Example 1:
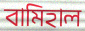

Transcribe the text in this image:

বামিহাল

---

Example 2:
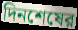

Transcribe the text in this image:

দিনশেষের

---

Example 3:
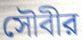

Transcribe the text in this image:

সৌবীর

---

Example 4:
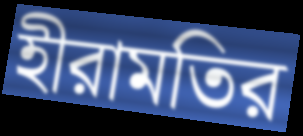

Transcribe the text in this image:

হীরামতির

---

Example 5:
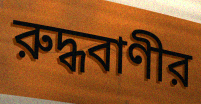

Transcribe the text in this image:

রুদ্ধবাণীর